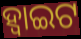
ହ୍ବାଇଟ